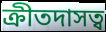
ক্রীতদাসত্ব